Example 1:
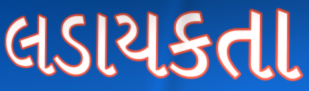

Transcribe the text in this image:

લડાયકતા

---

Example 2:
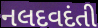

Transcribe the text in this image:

નલદવદંતી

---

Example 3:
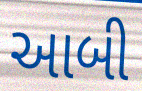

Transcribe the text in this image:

આબી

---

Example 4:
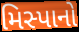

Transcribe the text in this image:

મિસ્પાનો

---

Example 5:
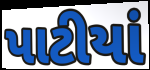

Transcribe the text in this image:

પાટીયાં